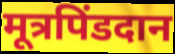
मूत्रपिंडदान